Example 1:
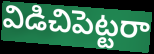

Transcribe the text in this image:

విడిచిపెట్టరా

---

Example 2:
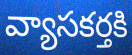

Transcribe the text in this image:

వ్యాసకర్తకి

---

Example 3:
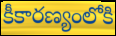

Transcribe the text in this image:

కీకారణ్యంలోకి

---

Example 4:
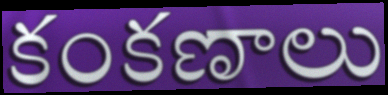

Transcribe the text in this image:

కంకణాలు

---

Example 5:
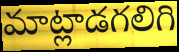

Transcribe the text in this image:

మాట్లాడగలిగి